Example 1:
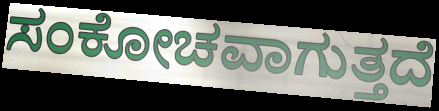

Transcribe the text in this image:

ಸಂಕೋಚವಾಗುತ್ತದೆ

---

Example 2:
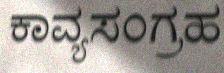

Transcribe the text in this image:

ಕಾವ್ಯಸಂಗ್ರಹ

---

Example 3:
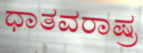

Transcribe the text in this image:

ಧಾತವರಾಷ್ರ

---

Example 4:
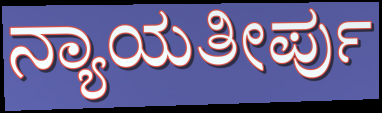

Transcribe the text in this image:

ನ್ಯಾಯತೀರ್ಪು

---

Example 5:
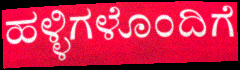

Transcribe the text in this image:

ಹಳ್ಳಿಗಳೊಂದಿಗೆ